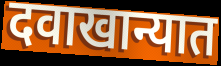
दवाखान्यात